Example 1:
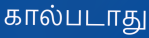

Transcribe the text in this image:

கால்படாது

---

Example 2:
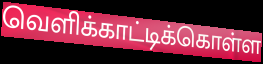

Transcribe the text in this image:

வெளிக்காட்டிக்கொள்ள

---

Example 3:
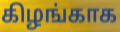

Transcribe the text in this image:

கிழங்காக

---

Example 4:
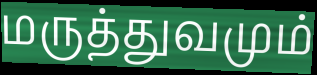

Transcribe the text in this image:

மருத்துவமும்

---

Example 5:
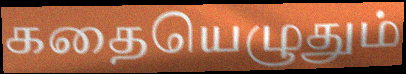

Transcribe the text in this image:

கதையெழுதும்